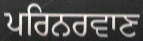
ਪਰਿਨਰਵਾਣ